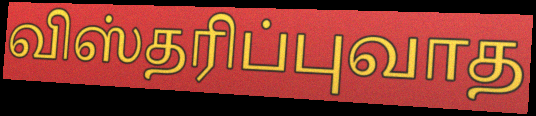
விஸ்தரிப்புவாத